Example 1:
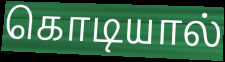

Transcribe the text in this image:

கொடியால்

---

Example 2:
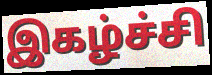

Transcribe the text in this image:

இகழ்ச்சி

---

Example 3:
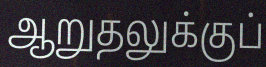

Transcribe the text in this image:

ஆறுதலுக்குப்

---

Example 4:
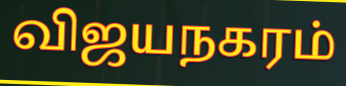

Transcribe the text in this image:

விஜயநகரம்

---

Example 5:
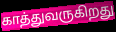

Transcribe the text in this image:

காத்துவருகிறது